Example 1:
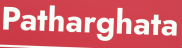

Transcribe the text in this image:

Patharghata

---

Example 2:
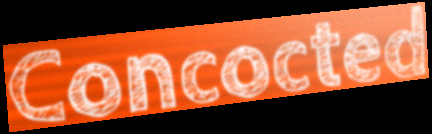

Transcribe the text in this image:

Concocted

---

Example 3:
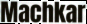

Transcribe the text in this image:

Machkar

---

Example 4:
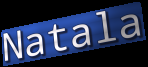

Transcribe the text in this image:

Natala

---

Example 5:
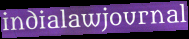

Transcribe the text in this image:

indialawjournal